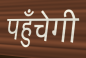
पहुँचेगी